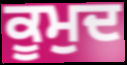
ਕੂਮੁਦ